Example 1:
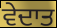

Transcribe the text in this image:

ਵੇਦਾਤ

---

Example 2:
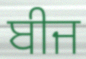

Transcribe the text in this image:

ਬੀਜ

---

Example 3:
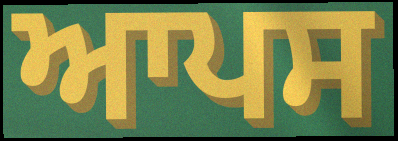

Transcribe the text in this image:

ਆਪਸ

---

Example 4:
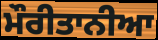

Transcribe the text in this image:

ਮੌਰੀਤਾਨੀਆ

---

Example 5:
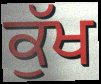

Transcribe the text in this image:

ਕੁੱਖ